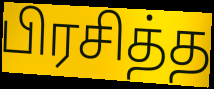
பிரசித்த